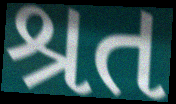
શ્રત